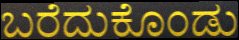
ಬರೆದುಕೊಂಡು